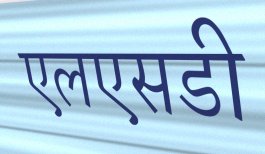
एलएसडी